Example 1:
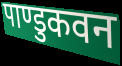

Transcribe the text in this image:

पाण्डुकवन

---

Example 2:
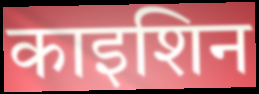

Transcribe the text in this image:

काइशिन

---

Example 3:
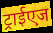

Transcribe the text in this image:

ट्राईएज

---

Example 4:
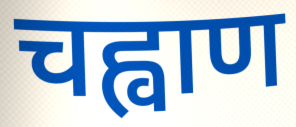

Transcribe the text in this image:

चह्वाण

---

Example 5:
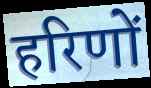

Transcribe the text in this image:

हरिणों